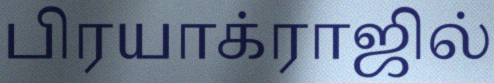
பிரயாக்ராஜில்